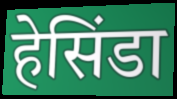
हेसिंडा